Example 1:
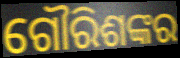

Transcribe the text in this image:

ଗୌରିଶଙ୍କର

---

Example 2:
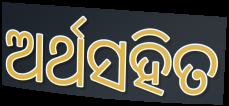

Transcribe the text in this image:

ଅର୍ଥସହିତ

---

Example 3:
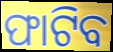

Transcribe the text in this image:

ଫାଟିବ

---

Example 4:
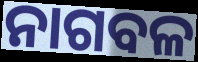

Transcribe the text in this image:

ନାଗବଳ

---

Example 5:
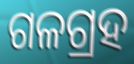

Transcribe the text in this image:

ଗଳଗ୍ରହ